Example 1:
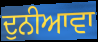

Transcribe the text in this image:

ਦੁਨੀਆਵਾ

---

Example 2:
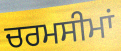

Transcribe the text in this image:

ਚਰਮਸੀਮਾਂ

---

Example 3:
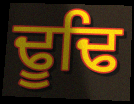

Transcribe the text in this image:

ਢੂਢਿ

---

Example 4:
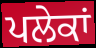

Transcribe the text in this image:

ਪਲੇਕਾਂ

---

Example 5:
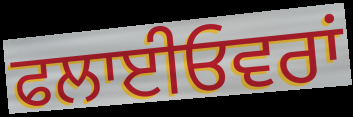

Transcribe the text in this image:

ਫਲਾਈਓਵਰਾਂ